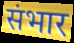
संभार